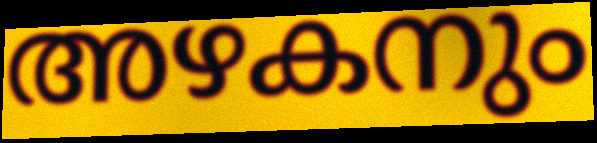
അഴകനും